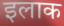
इलाक